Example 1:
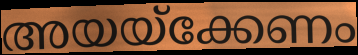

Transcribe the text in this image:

അയയ്ക്കേണം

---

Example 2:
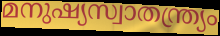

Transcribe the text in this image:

മനുഷ്യസ്വാതന്ത്ര്യം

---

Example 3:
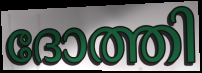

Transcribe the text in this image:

ദോത്തി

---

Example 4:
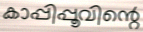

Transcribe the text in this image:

കാപ്പിപ്പൂവിന്റെ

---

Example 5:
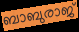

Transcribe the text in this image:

ബാബുരാജ്